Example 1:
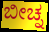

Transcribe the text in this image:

ಬೀಚ್ನ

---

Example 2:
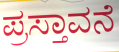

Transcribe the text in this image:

ಪ್ರಸ್ತಾವನೆ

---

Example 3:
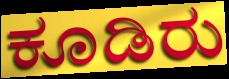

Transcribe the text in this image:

ಕೂಡಿರು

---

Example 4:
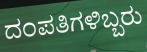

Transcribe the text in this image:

ದಂಪತಿಗಳಿಬ್ಬರು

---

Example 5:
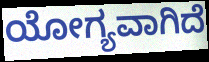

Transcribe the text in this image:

ಯೋಗ್ಯವಾಗಿದೆ